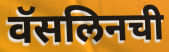
वॅसलिनची